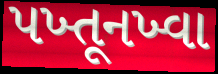
પખ્તૂનખ્વા